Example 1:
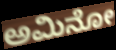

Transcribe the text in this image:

ಅಮಿನೋ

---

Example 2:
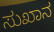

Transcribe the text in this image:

ಸುಖಾನ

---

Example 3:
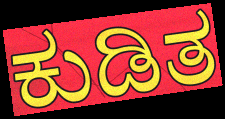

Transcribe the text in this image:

ಕುಡಿತ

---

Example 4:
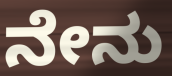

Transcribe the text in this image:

ನೇನು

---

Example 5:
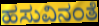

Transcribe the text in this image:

ಹಸುವಿನಂತೆ